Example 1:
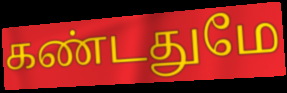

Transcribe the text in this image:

கண்டதுமே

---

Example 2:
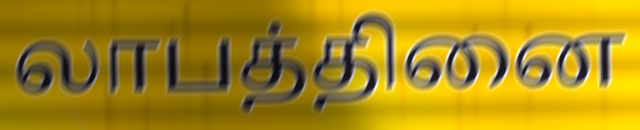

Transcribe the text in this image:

லாபத்தினை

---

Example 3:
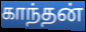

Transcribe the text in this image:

காந்தன்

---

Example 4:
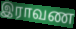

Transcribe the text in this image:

இராவண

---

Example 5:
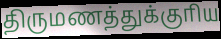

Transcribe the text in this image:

திருமணத்துக்குரிய